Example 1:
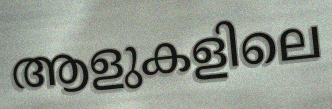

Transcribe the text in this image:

ആളുകളിലെ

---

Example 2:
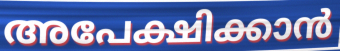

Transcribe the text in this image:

അപേക്ഷിക്കാൻ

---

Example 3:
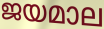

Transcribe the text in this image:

ജയമാല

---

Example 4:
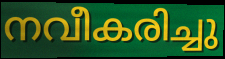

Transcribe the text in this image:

നവീകരിച്ചു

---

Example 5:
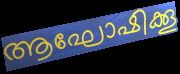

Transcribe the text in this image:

ആഘോഷിക്കൂ